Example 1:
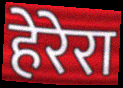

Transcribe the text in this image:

हेरेरा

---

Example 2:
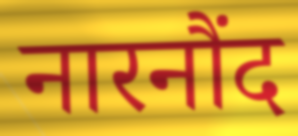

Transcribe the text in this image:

नारनौंद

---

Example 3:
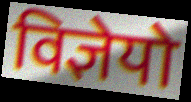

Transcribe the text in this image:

विज्ञेयो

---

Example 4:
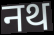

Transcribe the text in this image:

नथ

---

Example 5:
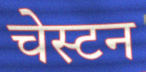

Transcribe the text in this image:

चेस्टन